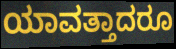
ಯಾವತ್ತಾದರೂ